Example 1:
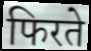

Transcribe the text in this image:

फिरते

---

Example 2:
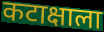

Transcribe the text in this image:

कटाक्षाला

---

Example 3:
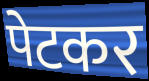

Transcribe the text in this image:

पेटकर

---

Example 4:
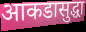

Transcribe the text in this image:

आकडासुद्धा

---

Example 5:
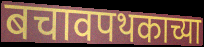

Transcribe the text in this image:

बचावपथकाच्या